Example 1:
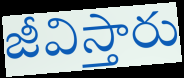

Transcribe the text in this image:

జీవిస్తారు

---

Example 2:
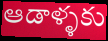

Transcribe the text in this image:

ఆడాళ్ళకు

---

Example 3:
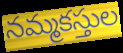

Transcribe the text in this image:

నమ్మకస్తుల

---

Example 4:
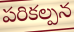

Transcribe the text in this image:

పరికల్పన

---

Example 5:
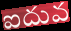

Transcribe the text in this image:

ఐదువ